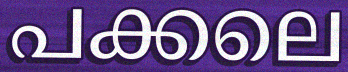
പക്കലെ